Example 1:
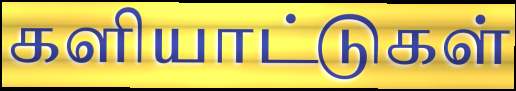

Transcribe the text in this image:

களியாட்டுகள்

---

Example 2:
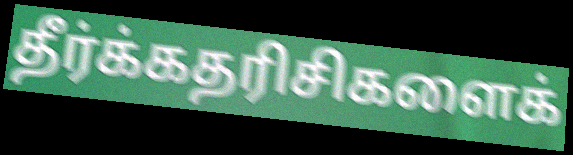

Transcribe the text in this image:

தீர்க்கதரிசிகளைக்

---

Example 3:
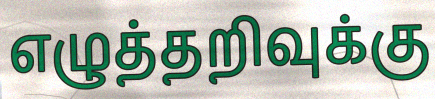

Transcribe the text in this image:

எழுத்தறிவுக்கு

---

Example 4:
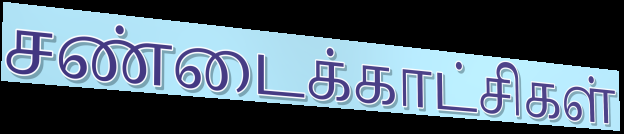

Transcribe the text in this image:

சண்டைக்காட்சிகள்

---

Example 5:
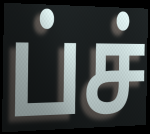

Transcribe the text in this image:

ப்ச்